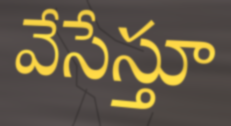
వేసేస్తూ